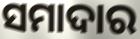
ସମାଦାର